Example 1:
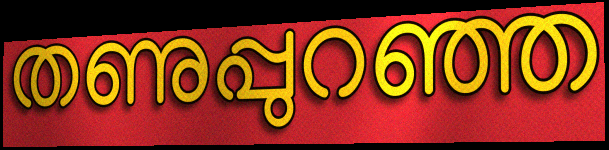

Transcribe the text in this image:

തണുപ്പുറഞ്ഞ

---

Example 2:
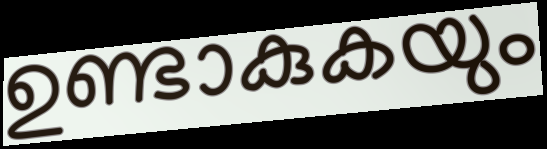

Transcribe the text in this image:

ഉണ്ടാകുകയും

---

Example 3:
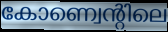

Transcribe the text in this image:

കോണ്വെന്റിലെ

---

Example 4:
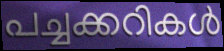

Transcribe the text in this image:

പച്ചക്കറികൾ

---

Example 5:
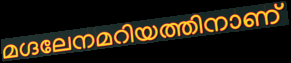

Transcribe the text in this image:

മഗ്ദലേനമറിയത്തിനാണ്